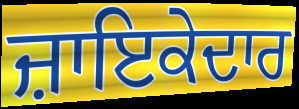
ਜ਼ਾਇਕੇਦਾਰ